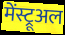
मेंस्ट्रूअल